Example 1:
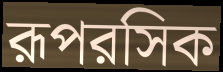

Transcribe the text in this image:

রূপরসিক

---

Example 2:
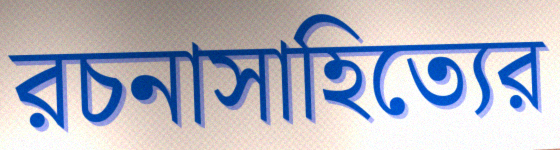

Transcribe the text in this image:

রচনাসাহিত্যের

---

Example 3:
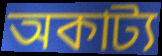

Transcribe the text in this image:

অকাট্য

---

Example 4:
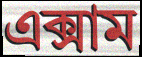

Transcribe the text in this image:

এক্সাম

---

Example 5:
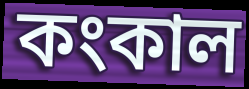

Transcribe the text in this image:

কংকাল